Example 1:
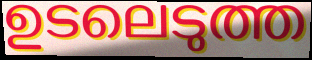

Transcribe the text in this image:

ഉടലെടുത്ത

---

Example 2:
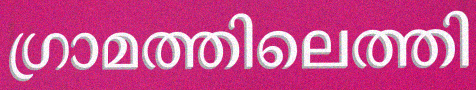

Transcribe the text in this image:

ഗ്രാമത്തിലെത്തി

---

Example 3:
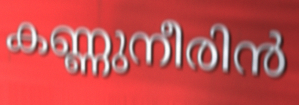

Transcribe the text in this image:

കണ്ണുനീരിൻ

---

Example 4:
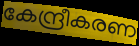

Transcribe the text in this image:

കേന്ദ്രീകരണ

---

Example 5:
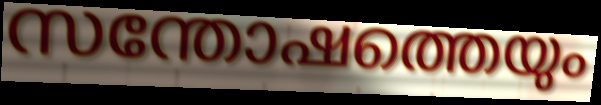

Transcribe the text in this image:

സന്തോഷത്തെയും